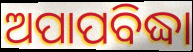
ଅପାପବିଦ୍ଧା